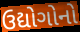
ઉદ્યોગોનો